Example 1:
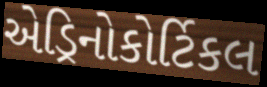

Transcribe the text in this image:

એડ્રિનોકોર્ટિકલ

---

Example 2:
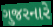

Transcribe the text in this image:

ગુજરનારે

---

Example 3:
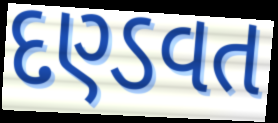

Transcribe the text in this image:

દણ્ડવત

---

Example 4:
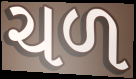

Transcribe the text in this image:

ચળ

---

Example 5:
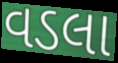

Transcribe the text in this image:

વડલા